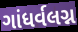
ગાંધર્વલગ્ન